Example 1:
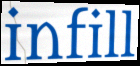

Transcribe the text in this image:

infill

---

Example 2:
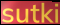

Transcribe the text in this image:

sutki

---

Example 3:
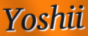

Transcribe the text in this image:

Yoshii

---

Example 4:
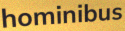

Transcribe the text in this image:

hominibus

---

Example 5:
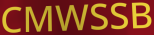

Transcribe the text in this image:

CMWSSB